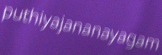
puthiyajananayagam